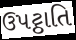
ઉપટ્ઠાતિ